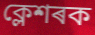
ক্লেশৰক